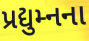
પ્રદ્યુમ્નના